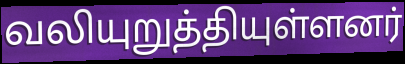
வலியுறுத்தியுள்ளனர்